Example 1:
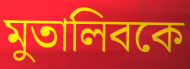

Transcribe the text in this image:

মুতালিবকে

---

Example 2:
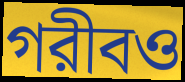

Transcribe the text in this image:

গরীবও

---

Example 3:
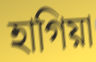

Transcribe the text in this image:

হাগিয়া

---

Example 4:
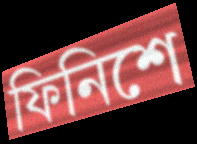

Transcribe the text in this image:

ফিনিশে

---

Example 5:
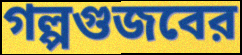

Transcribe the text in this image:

গল্পগুজবের